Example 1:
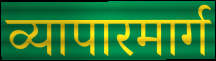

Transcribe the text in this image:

व्यापारमार्ग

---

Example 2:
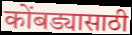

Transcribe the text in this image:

कोंबड्यासाठी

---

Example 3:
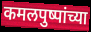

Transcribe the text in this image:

कमलपुष्पांच्या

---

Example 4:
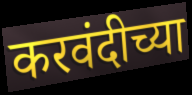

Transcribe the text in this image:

करवंदीच्या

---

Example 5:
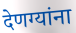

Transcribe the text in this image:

देणग्यांना